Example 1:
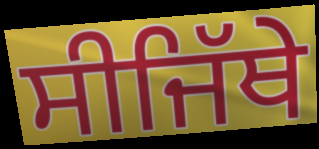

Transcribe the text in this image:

ਸੀਜਿੱਥੇ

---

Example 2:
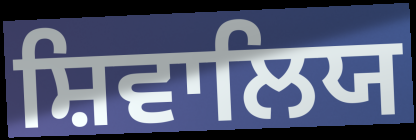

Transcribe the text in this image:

ਸ਼ਿਵਾਲਿਯ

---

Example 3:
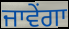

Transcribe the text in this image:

ਜਾਵੇਂਗਾ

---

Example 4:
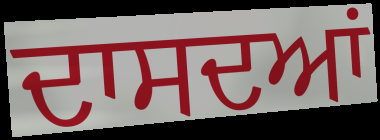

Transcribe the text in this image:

ਦਾਸਦਆਂ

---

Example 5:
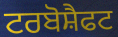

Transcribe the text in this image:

ਟਰਬੋਸ਼ੈਫਟ